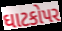
ઘાટકોપર